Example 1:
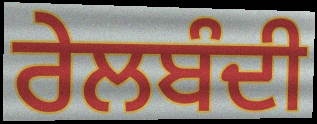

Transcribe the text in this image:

ਰੇਲਬੰਦੀ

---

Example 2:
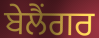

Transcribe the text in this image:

ਬੇਲੈਂਗਰ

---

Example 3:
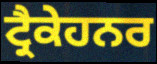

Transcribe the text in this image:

ਟ੍ਰੈਕੇਹਨਰ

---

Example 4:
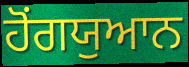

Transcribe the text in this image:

ਹੋਂਗਯੁਆਨ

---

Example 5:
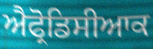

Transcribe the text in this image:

ਐਫ੍ਰੋਡਿਸੀਆਕ